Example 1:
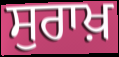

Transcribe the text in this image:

ਸੁਰਾਖ਼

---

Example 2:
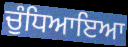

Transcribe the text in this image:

ਚੁੰਧਿਆਇਆ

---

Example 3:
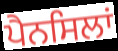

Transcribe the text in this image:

ਪੈਨਸਿਲਾਂ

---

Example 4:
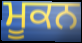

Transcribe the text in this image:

ਮੂਕਨ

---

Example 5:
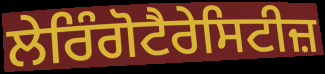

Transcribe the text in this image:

ਲੇਰਿੰਗੋਟੈਰੇਸਿਟੀਜ਼